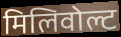
मिलिवोल्ट